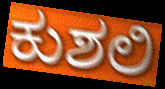
ಕುಶಲಿ